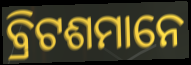
ବ୍ରିଟଶମାନେ